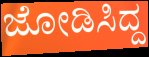
ಜೋಡಿಸಿದ್ದ